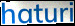
haturi